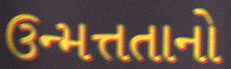
ઉન્મત્તતાનો